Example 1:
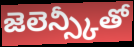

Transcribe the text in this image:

జెలెన్స్కీతో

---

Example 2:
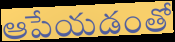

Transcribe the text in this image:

ఆపేయడంతో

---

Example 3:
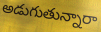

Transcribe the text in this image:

అడుగుతున్నారా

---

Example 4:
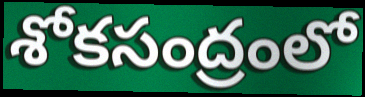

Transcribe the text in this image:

శోకసంద్రంలో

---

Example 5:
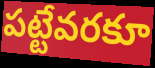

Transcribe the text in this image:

పట్టేవరకూ